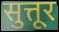
सुत्तूर